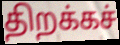
திறக்கச்